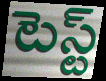
టెస్ట్